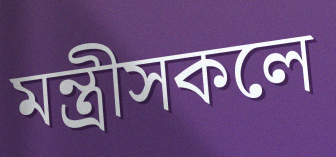
মন্ত্ৰীসকলে